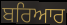
ਬਰਿਆਰ